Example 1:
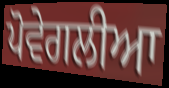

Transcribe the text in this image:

ਪੋਵੇਗਲੀਆ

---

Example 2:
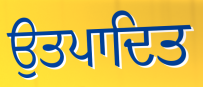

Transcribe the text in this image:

ਉਤਪਾਦਿਤ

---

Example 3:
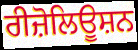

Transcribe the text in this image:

ਰੀਜ਼ੋਲਿਊਸ਼ਨ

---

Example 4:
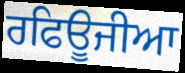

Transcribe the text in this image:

ਰਫਿਊਜੀਆ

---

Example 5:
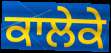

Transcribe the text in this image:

ਕਾਲੇਕੇ